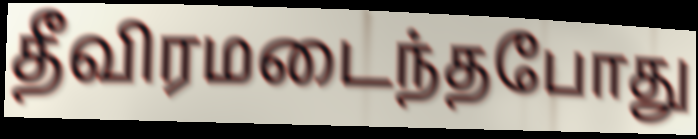
தீவிரமடைந்தபோது